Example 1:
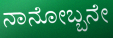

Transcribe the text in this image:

ನಾನೋಬ್ಬನೇ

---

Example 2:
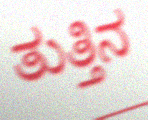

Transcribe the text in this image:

ತುತ್ತಿನ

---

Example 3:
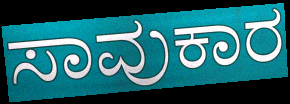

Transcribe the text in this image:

ಸಾವುಕಾರ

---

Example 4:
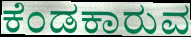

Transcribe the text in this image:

ಕೆಂಡಕಾರುವ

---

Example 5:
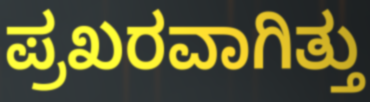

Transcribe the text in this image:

ಪ್ರಖರವಾಗಿತ್ತು